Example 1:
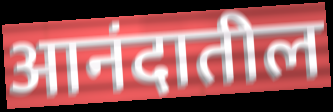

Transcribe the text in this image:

आनंदातील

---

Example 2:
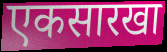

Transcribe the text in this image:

एकसारखा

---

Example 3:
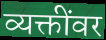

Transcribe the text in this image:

व्यक्तींवर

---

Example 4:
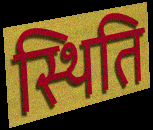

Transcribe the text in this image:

स्थिति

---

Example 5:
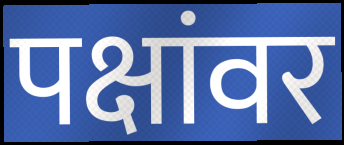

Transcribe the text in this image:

पक्षांवर